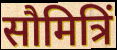
सौमित्रिं